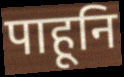
पाहूनि